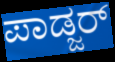
ಪಾಡ್ಜರ್